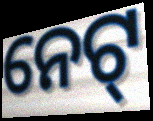
ନେଟ୍